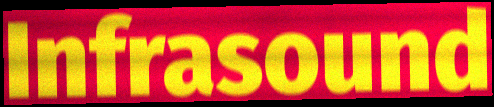
Infrasound